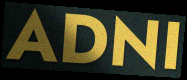
ADNI